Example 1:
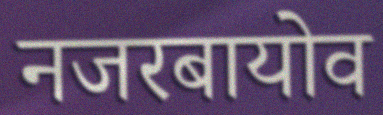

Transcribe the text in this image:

नजरबायोव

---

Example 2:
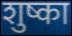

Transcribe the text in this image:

शुष्का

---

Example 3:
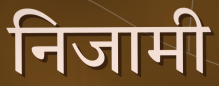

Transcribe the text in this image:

निजामी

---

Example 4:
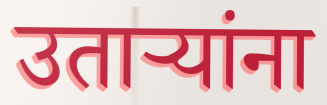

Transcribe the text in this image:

उताऱ्यांना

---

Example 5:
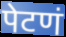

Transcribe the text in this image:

पेटणं